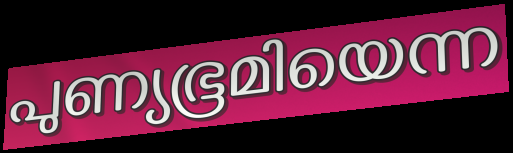
പുണ്യഭൂമിയെന്ന